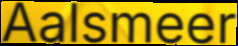
Aalsmeer